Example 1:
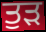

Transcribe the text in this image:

ਤੁੜ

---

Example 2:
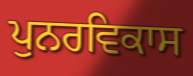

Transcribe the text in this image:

ਪੁਨਰਵਿਕਾਸ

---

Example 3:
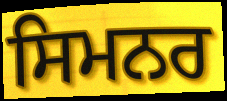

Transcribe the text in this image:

ਸਿਮਨਰ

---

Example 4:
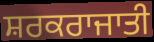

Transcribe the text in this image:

ਸ਼ਰਕਰਾਜਾਤੀ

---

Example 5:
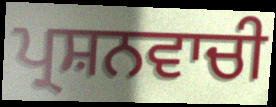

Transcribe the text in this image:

ਪ੍ਰਸ਼ਨਵਾਚੀ